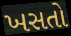
ખસતો